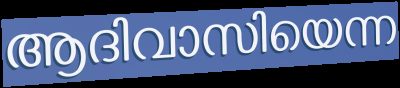
ആദിവാസിയെന്ന